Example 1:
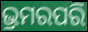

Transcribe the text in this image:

ଭ୍ରମରପରି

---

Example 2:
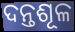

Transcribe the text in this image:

ଦନ୍ତଶୂଳ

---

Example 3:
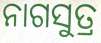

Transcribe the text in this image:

ନାଗସୁତ୍ର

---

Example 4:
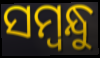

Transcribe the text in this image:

ସମ୍ବନ୍ଧୁ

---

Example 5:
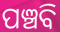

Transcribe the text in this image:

ପଞ୍ଚବି